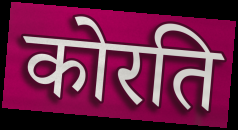
कोरति